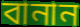
বানান